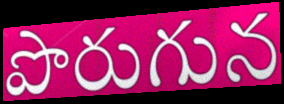
పొరుగున